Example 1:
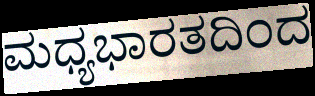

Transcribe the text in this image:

ಮಧ್ಯಭಾರತದಿಂದ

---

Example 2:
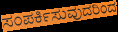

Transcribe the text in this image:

ಸಂಪರ್ಕಿಸುವುದರಿಂದ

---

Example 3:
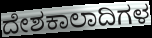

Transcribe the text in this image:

ದೇಶಕಾಲಾದಿಗಳ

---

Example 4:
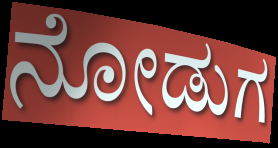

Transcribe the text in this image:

ನೋಡುಗ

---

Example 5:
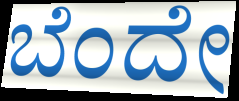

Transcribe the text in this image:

ಬೆಂದೇ